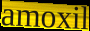
amoxil